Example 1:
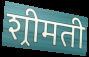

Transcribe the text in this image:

श्रीमती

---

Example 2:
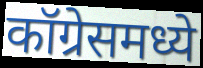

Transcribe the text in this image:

कॉग्रेसमध्ये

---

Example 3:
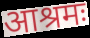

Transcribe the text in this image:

आश्रमः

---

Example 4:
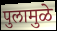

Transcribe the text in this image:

पुलामुळे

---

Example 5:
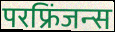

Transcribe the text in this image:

परफ्रिंजन्स